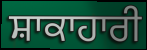
ਸ਼ਾਕਾਹਾਰੀ